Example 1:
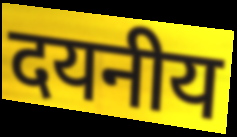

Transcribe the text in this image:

दयनीय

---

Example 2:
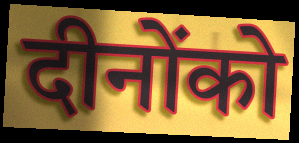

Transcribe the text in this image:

दीनोंको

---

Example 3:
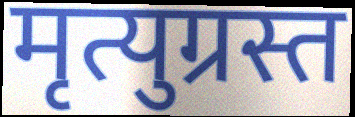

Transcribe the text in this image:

मृत्युग्रस्त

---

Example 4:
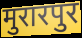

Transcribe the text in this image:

मुरारपुर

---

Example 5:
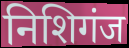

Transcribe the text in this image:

निशिगंज